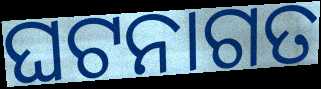
ଘଟନାଗତ